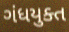
ગંધયુક્ત